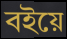
বইয়ে